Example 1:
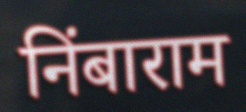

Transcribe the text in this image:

निंबाराम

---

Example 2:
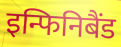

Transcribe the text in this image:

इन्फिनिबैंड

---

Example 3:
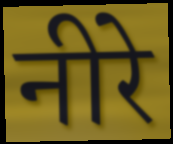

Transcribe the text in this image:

नीरे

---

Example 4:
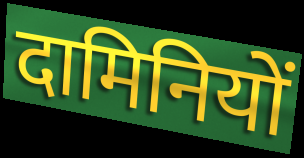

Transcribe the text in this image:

दामिनियों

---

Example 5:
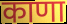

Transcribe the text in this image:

काणा